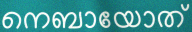
നെബായോത്